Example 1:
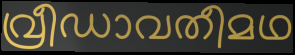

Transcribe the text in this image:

വ്രീഡാവതീമഥ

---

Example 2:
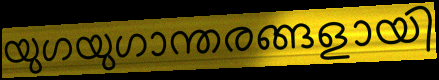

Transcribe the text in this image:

യുഗയുഗാന്തരങ്ങളായി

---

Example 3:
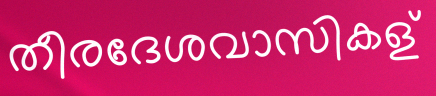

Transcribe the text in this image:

തീരദേശവാസികള്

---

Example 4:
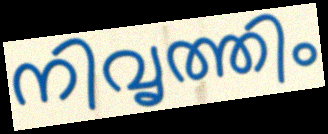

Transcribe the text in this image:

നിവൃത്തിം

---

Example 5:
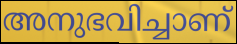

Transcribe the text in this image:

അനുഭവിച്ചാണ്